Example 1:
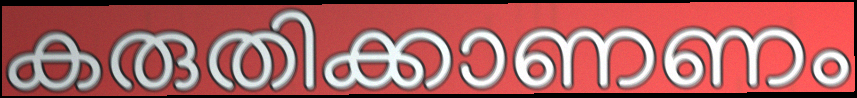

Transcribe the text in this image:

കരുതിക്കാണണം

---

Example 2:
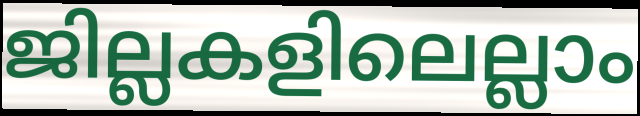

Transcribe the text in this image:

ജില്ലകളിലെല്ലാം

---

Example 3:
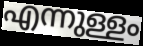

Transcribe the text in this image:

എന്നുള്ളം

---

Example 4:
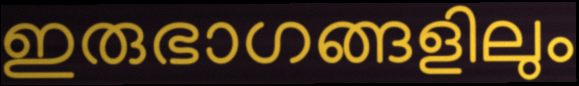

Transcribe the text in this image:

ഇരുഭാഗങ്ങളിലും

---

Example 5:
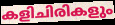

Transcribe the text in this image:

കളിചിരികളും